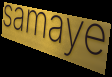
samaye